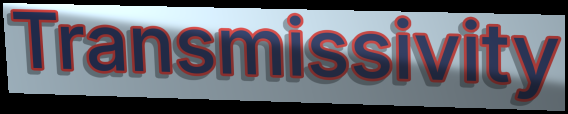
Transmissivity